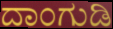
ದಾಂಗುಡಿ